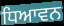
ਧਿਆਵਨ